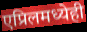
एप्रिलमध्येही